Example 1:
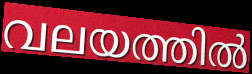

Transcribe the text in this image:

വലയത്തിൽ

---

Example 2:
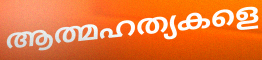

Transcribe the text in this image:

ആത്മഹത്യകളെ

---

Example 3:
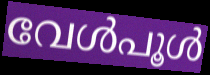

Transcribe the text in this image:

വേൾപൂൾ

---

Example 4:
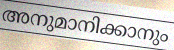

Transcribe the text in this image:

അനുമാനിക്കാനും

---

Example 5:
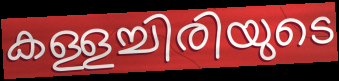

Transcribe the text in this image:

കള്ളച്ചിരിയുടെ